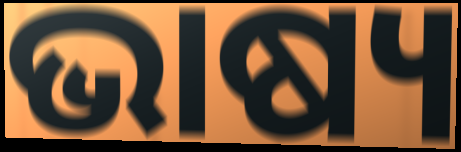
ଭାଷ୍ୟ